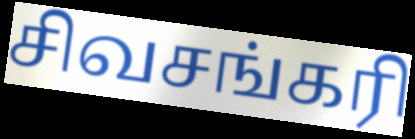
சிவசங்கரி